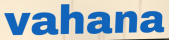
vahana